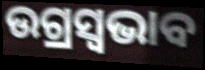
ଉଗ୍ରସ୍ୱଭାବ